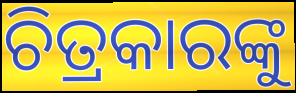
ଚିତ୍ରକାରଙ୍କୁ